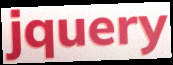
jquery